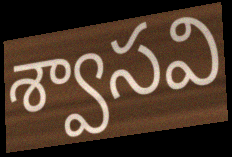
శ్వాసవి